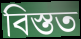
বিস্তত